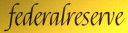
federalreserve